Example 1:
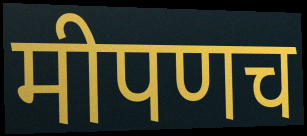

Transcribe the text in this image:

मीपणच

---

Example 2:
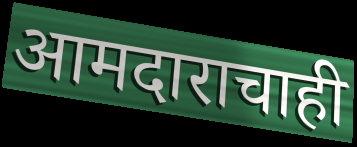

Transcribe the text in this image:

आमदाराचाही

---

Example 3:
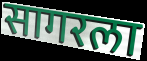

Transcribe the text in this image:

सागरला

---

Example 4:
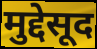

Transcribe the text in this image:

मुद्देसूद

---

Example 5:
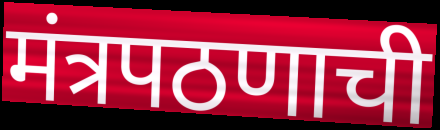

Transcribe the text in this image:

मंत्रपठणाची